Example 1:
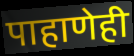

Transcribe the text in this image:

पाहाणेही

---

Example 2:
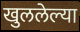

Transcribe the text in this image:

खुललेल्या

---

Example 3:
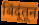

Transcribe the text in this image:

बिंदूंतून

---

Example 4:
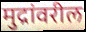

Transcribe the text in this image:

मुद्रांवरील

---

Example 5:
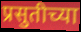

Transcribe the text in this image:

प्रसुतीच्या